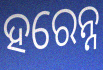
ହରେନ୍ନ